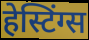
हेस्टिंग्स